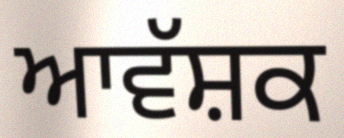
ਆਵੱਸ਼ਕ